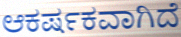
ಆಕರ್ಷಕವಾಗಿದೆ